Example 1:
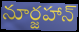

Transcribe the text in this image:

నూర్జహాన్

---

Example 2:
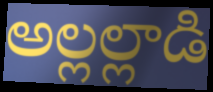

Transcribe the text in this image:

అల్లల్లాడి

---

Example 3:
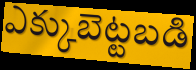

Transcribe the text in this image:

ఎక్కుబెట్టబడి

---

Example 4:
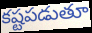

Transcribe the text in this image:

కష్టపడుతూ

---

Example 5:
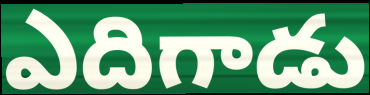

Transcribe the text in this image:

ఎదిగాడు